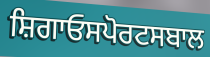
ਸ਼ਿਗਾਓਸਪੋਰਟਸਬਾਲ